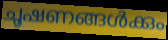
ചൂഷണങ്ങൾക്കും